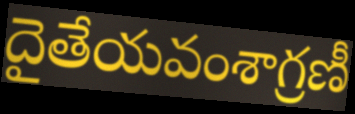
దైతేయవంశాగ్రణీ